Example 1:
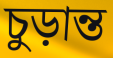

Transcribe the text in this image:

চুড়ান্ত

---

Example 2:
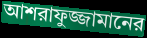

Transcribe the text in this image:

আশরাফুজ্জামানের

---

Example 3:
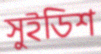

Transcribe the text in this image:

সুইডিশ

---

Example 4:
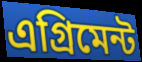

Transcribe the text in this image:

এগ্রিমেন্ট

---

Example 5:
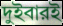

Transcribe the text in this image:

দুইবারই